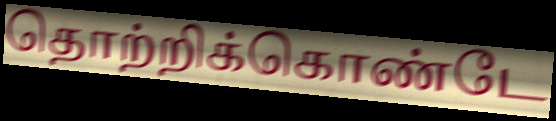
தொற்றிக்கொண்டே